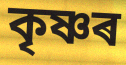
কৃষ্ণৰ